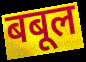
बबूल